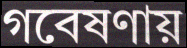
গবেষণায়